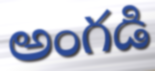
అంగడి